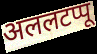
अललटप्पू